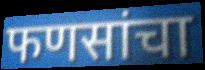
फणसांचा